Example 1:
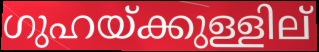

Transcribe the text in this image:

ഗുഹയ്ക്കുള്ളില്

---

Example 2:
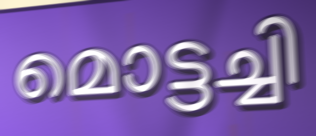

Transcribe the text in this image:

മൊട്ടച്ചി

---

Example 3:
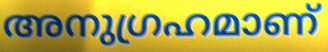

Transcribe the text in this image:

അനുഗ്രഹമാണ്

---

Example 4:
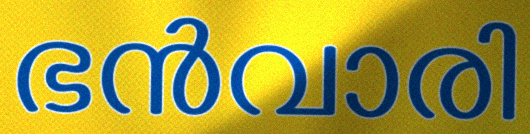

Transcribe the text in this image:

ഭൻവാരി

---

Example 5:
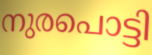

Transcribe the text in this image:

നുരപൊട്ടി